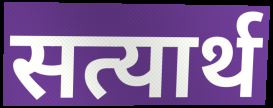
सत्यार्थ